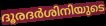
ദൂരദർശിനിയുടെ